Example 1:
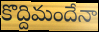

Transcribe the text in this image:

కొద్దిమందేనా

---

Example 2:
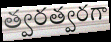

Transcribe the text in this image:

త్వరత్వరగా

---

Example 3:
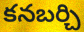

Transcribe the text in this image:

కనబర్చి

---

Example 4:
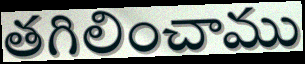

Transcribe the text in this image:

తగిలించాము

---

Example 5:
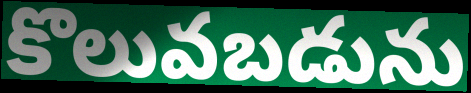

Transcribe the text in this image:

కొలువబడును